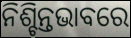
ନିଶ୍ଚିନ୍ତଭାବରେ